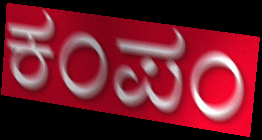
ಕಂಪಂ